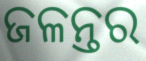
ଜଳନ୍ତର